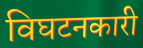
विघटनकारी